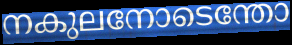
നകുലനോടെന്തോ